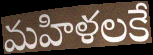
మహిళలకే